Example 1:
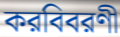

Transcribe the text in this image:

করবিবরণী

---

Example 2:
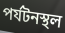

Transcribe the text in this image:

পর্যটনস্থল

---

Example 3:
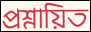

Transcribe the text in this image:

প্রশ্নায়িত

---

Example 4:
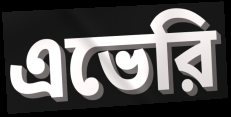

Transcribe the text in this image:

এভেরি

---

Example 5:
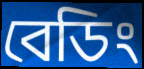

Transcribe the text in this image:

বেডিং